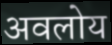
अवलोय